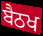
ਬੈਠਖ